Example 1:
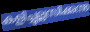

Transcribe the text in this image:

കളിച്ചുല്ലസിക്കുന്നു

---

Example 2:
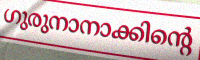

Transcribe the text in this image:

ഗുരുനാനാക്കിന്റെ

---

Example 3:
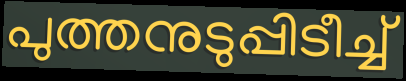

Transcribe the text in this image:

പുത്തനുടുപ്പിടീച്ച്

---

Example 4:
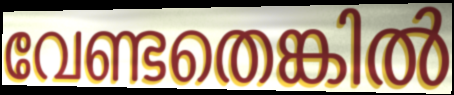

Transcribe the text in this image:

വേണ്ടതെങ്കിൽ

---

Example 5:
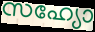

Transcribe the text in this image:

സഹ്യോ